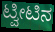
ಟ್ವೀಟಿನ